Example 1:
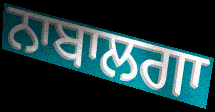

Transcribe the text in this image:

ਨਾਬਾਲਗਾ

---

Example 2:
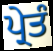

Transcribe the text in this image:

ਪ੍ਰੇਤੰ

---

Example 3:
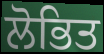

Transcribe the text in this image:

ਲੋਭਿਤ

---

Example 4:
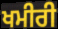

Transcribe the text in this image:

ਖਮੀਰੀ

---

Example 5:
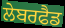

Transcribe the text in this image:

ਲੇਬਰਫੈਡ